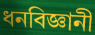
ধনবিজ্ঞানী